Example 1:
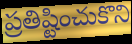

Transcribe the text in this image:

ప్రతిష్టించుకొని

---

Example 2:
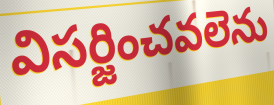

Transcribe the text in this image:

విసర్జించవలెను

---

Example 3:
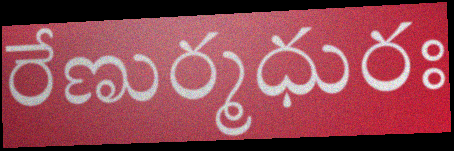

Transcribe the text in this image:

రేణుర్మధురః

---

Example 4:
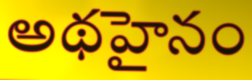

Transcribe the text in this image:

అథహైనం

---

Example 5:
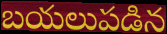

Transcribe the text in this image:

బయలుపడిన